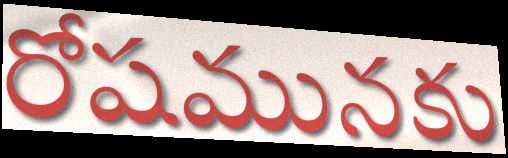
రోషమునకు